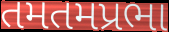
તમતમપ્રભા